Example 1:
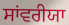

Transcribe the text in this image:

ਸਾਂਵਰੀਯਾ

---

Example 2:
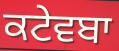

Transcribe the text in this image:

ਕਟੇਵਬਾ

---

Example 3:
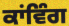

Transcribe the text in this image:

ਕਾਂਵਿੰਗ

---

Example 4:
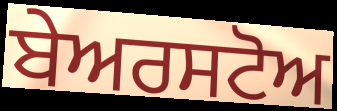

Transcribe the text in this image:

ਬੇਅਰਸਟੋਅ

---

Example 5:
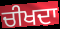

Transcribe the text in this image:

ਚੀਖਦਾ